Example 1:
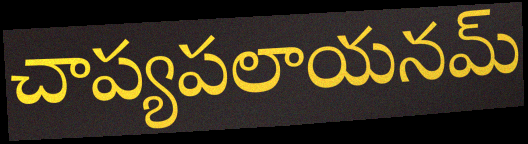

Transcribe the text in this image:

చాప్యపలాయనమ్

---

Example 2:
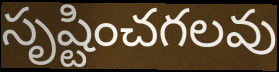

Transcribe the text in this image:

సృష్టించగలవు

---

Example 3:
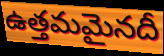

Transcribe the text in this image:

ఉత్తమమైనదీ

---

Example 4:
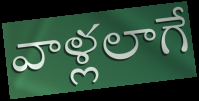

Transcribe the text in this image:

వాళ్లలాగే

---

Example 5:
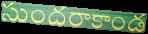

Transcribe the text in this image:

సుందరాకాండ